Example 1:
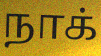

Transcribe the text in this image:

நாக்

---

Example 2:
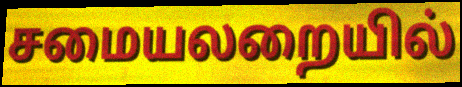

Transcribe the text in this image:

சமையலறையில்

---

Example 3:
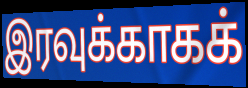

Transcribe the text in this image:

இரவுக்காகக்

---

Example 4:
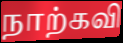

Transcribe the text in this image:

நாற்கவி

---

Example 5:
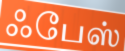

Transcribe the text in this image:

ஃபேஸ்